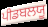
ਪੀਡਬਲਯੂ